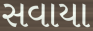
સવાયા